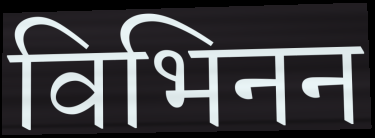
विभिनन